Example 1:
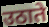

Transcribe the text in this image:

उठाते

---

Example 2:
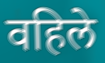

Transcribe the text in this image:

वहिले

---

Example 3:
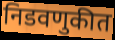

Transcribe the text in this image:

निडवणुकीत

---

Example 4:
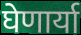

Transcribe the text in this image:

घेणार्या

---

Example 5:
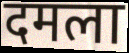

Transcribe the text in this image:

दमला